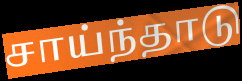
சாய்ந்தாடு